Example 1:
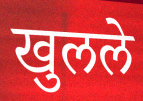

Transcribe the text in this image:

खुलले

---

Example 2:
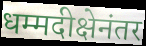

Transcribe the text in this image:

धम्मदीक्षेनंतर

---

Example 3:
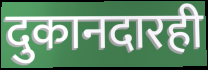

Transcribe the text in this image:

दुकानदारही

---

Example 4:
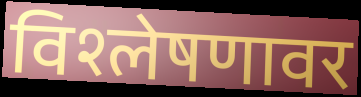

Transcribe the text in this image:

विश्लेषणावर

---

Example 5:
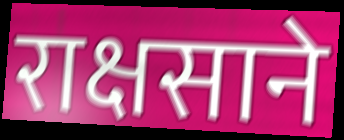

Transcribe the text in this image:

राक्षसाने